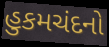
હુકમચંદનો